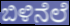
ಬಿಳಿನೆಲೆ